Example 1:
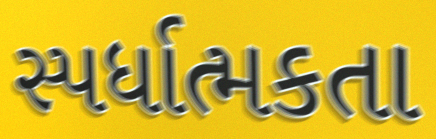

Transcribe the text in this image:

સ્પર્ધાત્મકતા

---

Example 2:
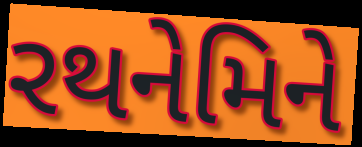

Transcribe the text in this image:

રથનેમિને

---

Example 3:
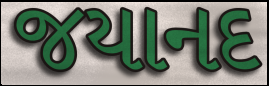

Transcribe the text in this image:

જયાનદ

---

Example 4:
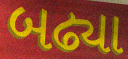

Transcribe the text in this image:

બઢ્યા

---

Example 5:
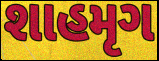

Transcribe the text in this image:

શાહમૃગ